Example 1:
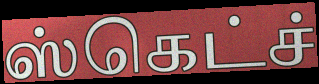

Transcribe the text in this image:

ஸ்கெட்ச்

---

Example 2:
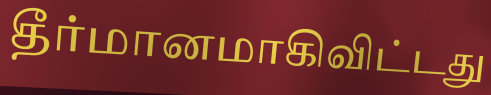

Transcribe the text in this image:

தீர்மானமாகிவிட்டது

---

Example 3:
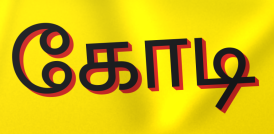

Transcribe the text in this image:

கோடி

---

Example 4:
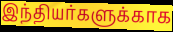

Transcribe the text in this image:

இந்தியர்களுக்காக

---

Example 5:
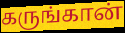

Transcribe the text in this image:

கருங்கான்